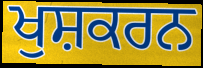
ਖੁਸ਼ਕਰਨ